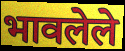
भावलेले